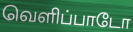
வெளிப்பாடோ